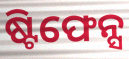
ଷ୍ଟିଫେନ୍ସ